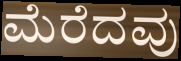
ಮೆರೆದವು